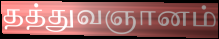
தத்துவஞானம்